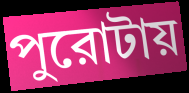
পুরোটায়